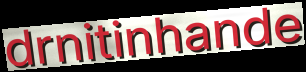
drnitinhande